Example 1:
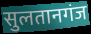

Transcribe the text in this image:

सुलतानगंज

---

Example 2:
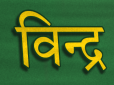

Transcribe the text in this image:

विन्द्र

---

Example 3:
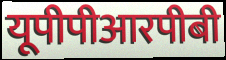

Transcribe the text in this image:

यूपीपीआरपीबी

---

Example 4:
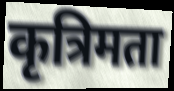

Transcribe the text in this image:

कृत्रिमता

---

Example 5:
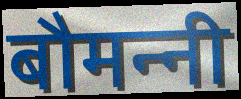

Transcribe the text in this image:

बौमन्नी